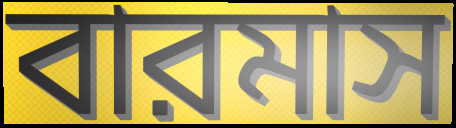
বারমাস